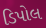
ડિપોલ